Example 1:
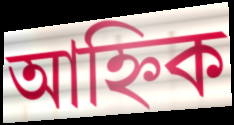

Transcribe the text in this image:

আহ্নিক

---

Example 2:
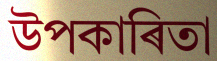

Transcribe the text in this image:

উপকাৰিতা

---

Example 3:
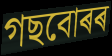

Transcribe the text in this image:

গছবোৰৰ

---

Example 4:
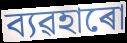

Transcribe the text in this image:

ব্যৱহাৰো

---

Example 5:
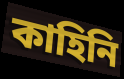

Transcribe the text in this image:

কাহিনি